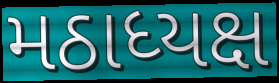
મઠાધ્યક્ષ